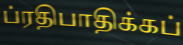
ப்ரதிபாதிக்கப்